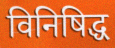
विनिषिद्ध